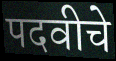
पदवीचे